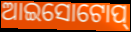
ଆଇସୋଟୋପ୍